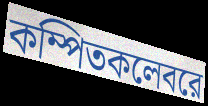
কম্পিতকলেবরে